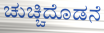
ಚುಚ್ಚಿದೊಡನೆ